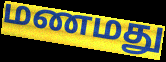
மணமது